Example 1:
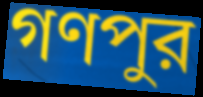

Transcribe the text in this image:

গণপুর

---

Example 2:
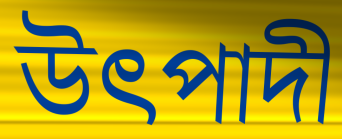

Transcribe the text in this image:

উৎপাদী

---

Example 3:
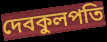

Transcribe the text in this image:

দেবকুলপতি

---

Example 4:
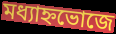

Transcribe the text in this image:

মধ্যাহ্নভোজে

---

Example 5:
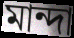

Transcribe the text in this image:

মান্দা